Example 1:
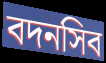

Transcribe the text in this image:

বদনসিব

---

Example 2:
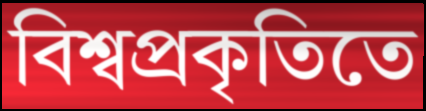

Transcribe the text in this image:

বিশ্বপ্রকৃতিতে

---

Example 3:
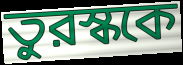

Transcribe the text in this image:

তুরস্ককে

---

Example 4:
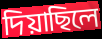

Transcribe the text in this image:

দিয়াছিলে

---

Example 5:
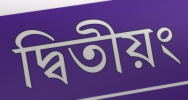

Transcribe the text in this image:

দ্বিতীয়ং